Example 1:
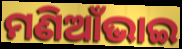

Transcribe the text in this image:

ମଣିଆଁଭାଇ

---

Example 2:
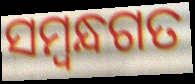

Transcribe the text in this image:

ସମ୍ବନ୍ଧଗତ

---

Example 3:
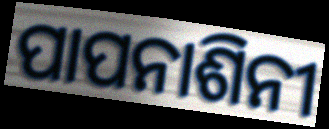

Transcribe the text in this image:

ପାପନାଶିନୀ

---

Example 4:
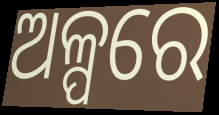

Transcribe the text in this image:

ଅଳ୍ପରେ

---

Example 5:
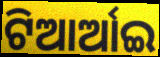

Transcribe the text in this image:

ଟିଆର୍ଆଇ